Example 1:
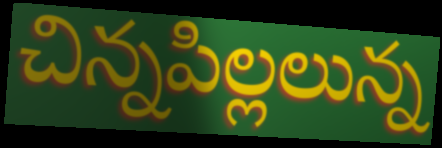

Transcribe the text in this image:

చిన్నపిల్లలున్న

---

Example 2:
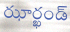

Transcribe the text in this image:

ఝార్ఖండ్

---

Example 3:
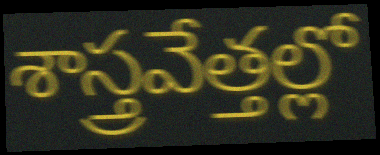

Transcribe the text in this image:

శాస్త్రవేత్తల్లో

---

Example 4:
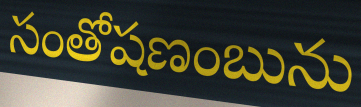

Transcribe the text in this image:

సంతోషణంబును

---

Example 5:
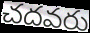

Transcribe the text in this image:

చదవరు